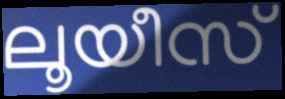
ലൂയീസ്